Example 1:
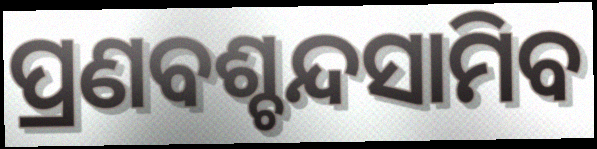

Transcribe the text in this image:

ପ୍ରଣବଶ୍ଚନ୍ଦସାମିବ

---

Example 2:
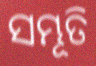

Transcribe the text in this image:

ସମ୍ଭୂତି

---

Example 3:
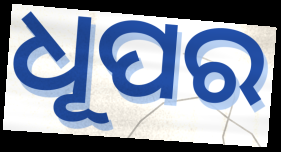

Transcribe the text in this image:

ଧୂପର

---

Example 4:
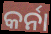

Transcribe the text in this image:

କର୍ନା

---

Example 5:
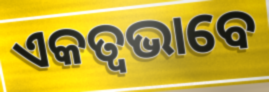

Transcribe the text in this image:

ଏକତ୍ଵଭାବେ